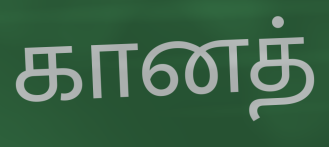
கானத்